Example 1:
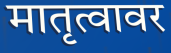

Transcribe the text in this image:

मातृत्वावर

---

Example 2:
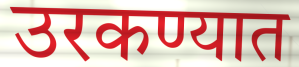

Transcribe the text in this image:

उरकण्यात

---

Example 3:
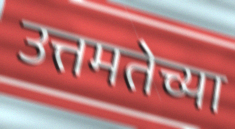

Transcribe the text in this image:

उत्तमतेच्या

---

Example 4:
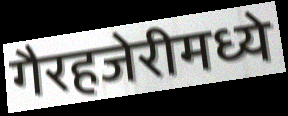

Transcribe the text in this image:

गैरहजेरीमध्ये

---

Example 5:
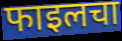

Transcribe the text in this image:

फाइलचा